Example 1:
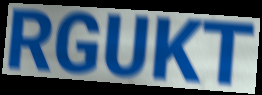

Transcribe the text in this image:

RGUKT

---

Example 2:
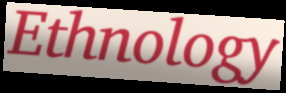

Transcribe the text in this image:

Ethnology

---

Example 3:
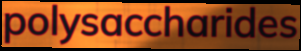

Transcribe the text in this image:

polysaccharides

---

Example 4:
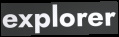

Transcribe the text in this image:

explorer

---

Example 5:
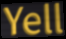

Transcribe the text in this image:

Yell